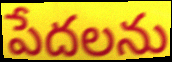
పేదలను